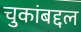
चुकांबद्दल